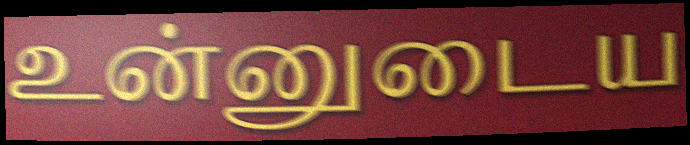
உன்னுடைய